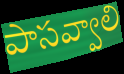
పాసవ్వాలి